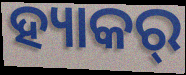
ହ୍ୟାକର୍